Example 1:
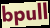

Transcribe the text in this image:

bpull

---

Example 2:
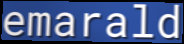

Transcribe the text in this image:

emarald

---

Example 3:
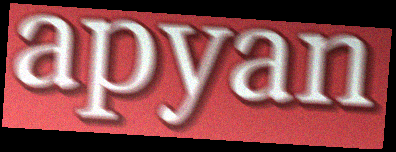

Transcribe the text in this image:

apyan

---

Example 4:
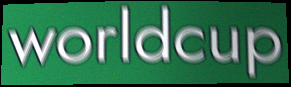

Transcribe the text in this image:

worldcup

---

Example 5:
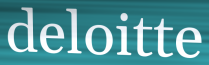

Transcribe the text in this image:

deloitte